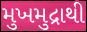
મુખમુદ્રાથી